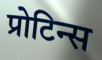
प्रोटिन्स